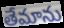
తేమాను